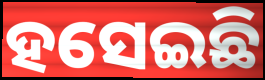
ହସେଇଛି